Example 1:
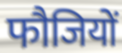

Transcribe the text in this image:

फौजियों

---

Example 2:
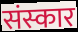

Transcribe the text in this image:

संस्‍कार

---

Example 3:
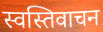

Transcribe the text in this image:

स्वस्तिवाचन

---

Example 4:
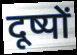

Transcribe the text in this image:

दूष्यों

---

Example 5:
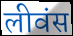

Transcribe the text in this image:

लीवंस